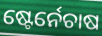
ଷ୍ଟେର୍ନେଚାଷ